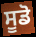
ਸੂਡੋ